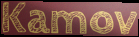
Kamov